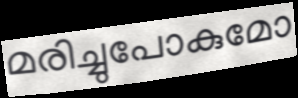
മരിച്ചുപോകുമോ